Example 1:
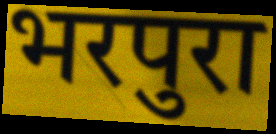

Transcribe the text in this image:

भरपुरा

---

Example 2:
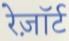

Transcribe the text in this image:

रेज़ॉर्ट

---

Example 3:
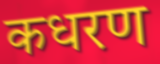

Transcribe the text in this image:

कधरण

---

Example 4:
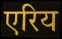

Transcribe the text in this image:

एरिय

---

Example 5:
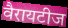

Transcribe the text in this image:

वैरायटीज